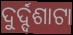
ଦୁର୍ଦ୍ଦଶାଟା